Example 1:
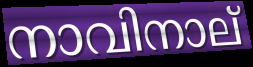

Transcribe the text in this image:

നാവിനാല്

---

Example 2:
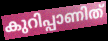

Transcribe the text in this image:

കുറിപ്പാണിത്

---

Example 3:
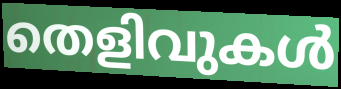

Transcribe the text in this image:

തെളിവുകൾ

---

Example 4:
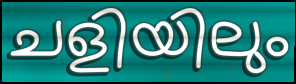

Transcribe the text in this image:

ചളിയിലും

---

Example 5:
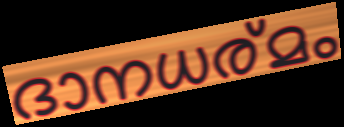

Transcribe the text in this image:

ദാനധര്മം